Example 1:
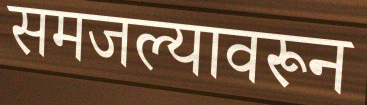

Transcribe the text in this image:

समजल्यावरून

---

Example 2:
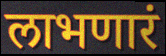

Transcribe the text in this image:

लाभणारं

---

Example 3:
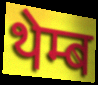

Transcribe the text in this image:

थेम्ब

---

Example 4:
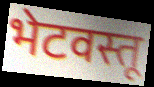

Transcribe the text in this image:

भेटवस्तू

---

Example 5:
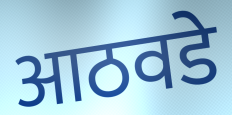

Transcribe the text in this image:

आठवडे